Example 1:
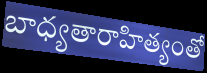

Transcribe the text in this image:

బాధ్యతారాహిత్యంతో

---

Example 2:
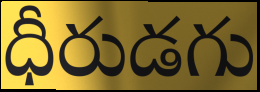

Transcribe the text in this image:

ధీరుడగు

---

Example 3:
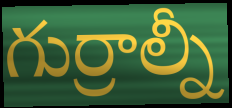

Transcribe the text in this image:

గుర్రాల్నీ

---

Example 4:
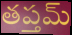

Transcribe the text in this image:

తప్తమ్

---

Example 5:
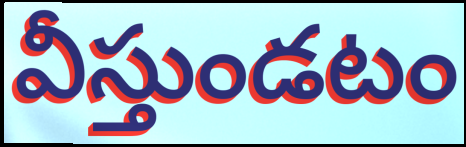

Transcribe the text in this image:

వీస్తుండటం